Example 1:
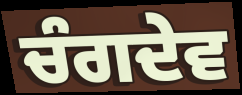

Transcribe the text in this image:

ਚੰਗਦੇਵ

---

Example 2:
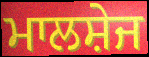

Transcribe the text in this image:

ਮਾਲਸ਼ੇਜ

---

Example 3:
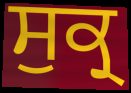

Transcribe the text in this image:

ਸੁਕ੍ਰ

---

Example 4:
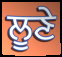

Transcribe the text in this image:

ਲੂਣੇ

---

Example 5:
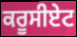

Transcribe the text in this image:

ਕਰੂਸੀਏਟ